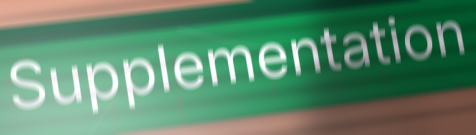
Supplementation